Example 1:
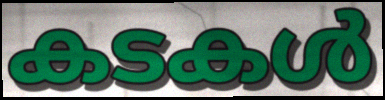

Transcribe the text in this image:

കടകൾ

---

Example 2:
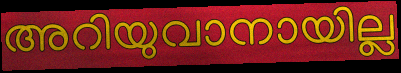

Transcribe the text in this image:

അറിയുവാനായില്ല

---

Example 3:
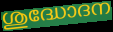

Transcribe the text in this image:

ശുദ്ധോദന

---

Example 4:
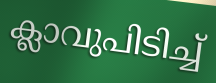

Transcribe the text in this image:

ക്ലാവുപിടിച്ച്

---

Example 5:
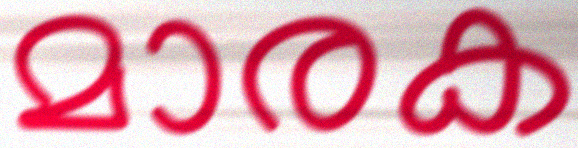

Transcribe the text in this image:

മാരക